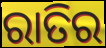
ରାତିର